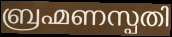
ബ്രഹ്മണസ്പതി